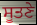
ਸੂਤਣੇ